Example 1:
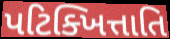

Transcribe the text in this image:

પટિક્ખિત્તાતિ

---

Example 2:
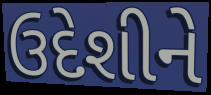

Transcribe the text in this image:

ઉદેશીને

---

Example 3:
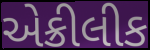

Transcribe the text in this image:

એક્રીલીક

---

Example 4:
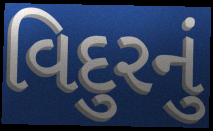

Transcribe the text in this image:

વિદુરનું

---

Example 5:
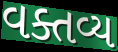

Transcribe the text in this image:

વક્તવ્ય